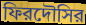
ফিরদৌসির